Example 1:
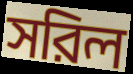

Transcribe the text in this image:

সরিল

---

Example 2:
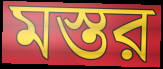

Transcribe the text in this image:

মস্তর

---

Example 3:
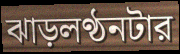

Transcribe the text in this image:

ঝাড়লণ্ঠনটার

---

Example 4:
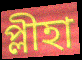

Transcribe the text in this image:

প্লীহা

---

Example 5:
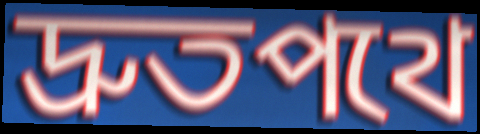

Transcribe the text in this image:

দ্রুতপথে